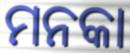
ମନକା